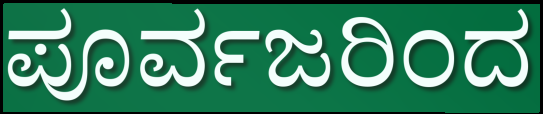
ಪೂರ್ವಜರಿಂದ